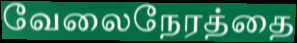
வேலைநேரத்தை